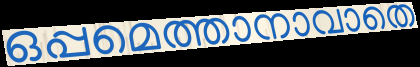
ഒപ്പമെത്താനാവാതെ